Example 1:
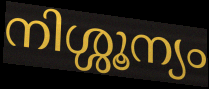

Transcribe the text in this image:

നിശ്ശൂന്യം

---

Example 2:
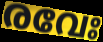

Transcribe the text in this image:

രവേഃ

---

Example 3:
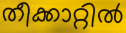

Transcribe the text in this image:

തീക്കാറ്റിൽ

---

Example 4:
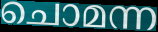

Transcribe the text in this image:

ചൊമന്ന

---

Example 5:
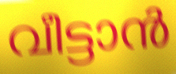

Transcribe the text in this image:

വീട്ടാൻ